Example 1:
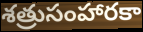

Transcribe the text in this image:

శత్రుసంహారకా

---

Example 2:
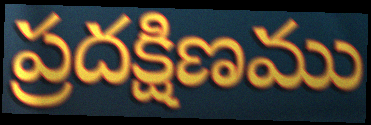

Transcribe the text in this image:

ప్రదక్షిణము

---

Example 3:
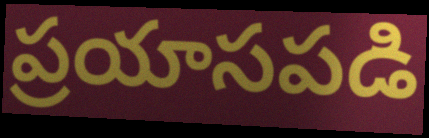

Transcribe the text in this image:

ప్రయాసపడి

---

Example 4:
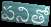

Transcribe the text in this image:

పనితో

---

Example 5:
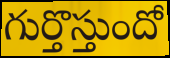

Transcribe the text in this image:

గుర్తొస్తుందో